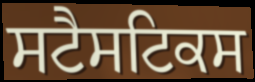
ਸਟੈਸਟਿਕਸ